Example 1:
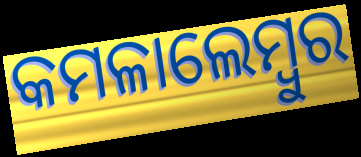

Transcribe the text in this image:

କମଳାଲେମ୍ବୁର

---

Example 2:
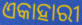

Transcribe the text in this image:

ଏକାହାରୀ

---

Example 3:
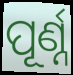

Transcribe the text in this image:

ପୂର୍ଣ୍ନ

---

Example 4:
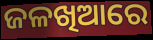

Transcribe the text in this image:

ଜଳଖିଆରେ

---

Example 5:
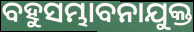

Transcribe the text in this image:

ବହୁସମ୍ଭାବନାଯୁକ୍ତ